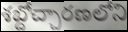
శబ్దోచ్చారణలోని